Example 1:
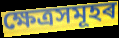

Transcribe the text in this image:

ক্ষেত্ৰসমূহৰ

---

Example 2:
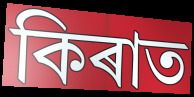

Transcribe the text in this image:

কিৰাত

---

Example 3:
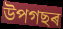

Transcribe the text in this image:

উপগছৰ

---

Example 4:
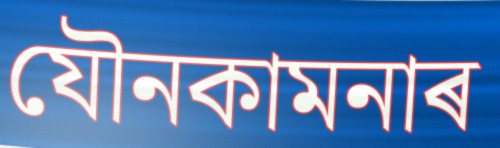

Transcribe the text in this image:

যৌনকামনাৰ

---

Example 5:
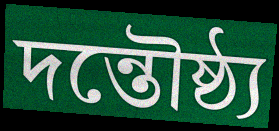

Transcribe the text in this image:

দন্তৌষ্ঠ্য